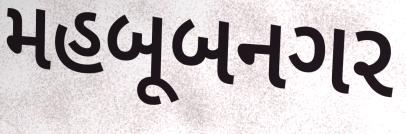
મહબૂબનગર